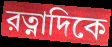
রত্নাদিকে